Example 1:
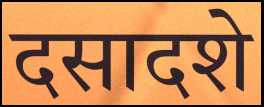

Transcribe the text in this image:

दसादशे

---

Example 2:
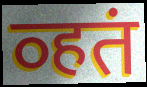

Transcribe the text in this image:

व्हतं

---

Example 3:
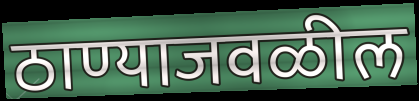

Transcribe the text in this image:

ठाण्याजवळील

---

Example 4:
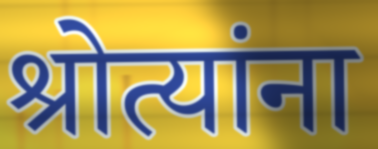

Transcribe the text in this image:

श्रोत्यांना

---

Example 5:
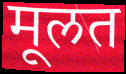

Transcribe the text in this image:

मूलत